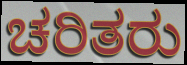
ಚರಿತರು